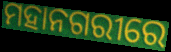
ମହାନଗରୀରେ